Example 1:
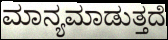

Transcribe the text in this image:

ಮಾನ್ಯಮಾಡುತ್ತದೆ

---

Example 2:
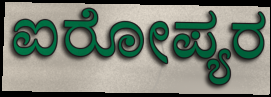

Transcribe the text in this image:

ಐರೋಪ್ಯರ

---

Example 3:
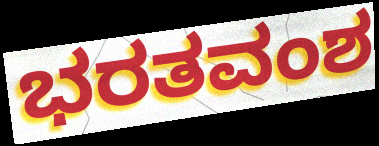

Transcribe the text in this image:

ಭರತವಂಶ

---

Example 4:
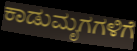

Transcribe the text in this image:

ಕಾಡುಮೃಗಗಳಿಗೆ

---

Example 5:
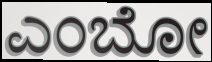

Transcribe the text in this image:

ಎಂಬೋ